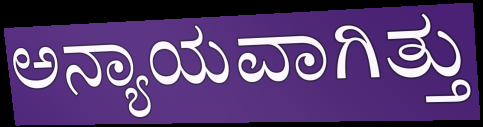
ಅನ್ಯಾಯವಾಗಿತ್ತು